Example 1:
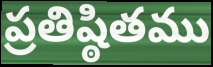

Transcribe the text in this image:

ప్రతిష్ఠితము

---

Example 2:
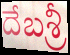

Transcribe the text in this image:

దేబశ్రీ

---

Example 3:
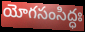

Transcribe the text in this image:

యోగసంసిద్ధః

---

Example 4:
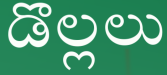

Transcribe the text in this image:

డొల్లలు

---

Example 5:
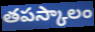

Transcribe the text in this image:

తపస్కాలం